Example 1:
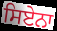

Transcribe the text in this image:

ਸਿਏਨਾ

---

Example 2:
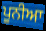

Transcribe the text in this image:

ਪੂਨੀਆ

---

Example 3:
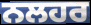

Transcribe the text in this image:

ਨਲਹਰ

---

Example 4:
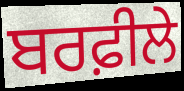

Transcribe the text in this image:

ਬਰਫ਼ੀਲੇ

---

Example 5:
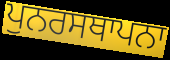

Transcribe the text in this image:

ਪੁਨਰਸਥਾਪਨਾ